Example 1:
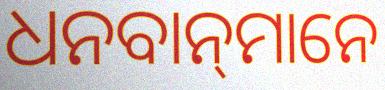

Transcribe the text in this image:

ଧନବାନ୍‍ମାନେ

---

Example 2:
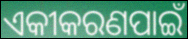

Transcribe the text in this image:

ଏକୀକରଣପାଇଁ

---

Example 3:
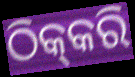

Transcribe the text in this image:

ଠିକ୍‍କରି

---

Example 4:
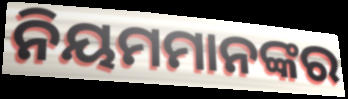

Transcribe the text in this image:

ନିୟମମାନଙ୍କର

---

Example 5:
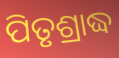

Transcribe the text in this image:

ପିତୃଶ୍ରାଦ୍ଧ